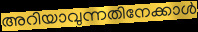
അറിയാവുന്നതിനേക്കാൾ